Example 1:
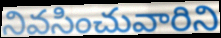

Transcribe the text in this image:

నివసించువారిని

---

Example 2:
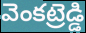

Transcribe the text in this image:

వెంకట్రెడ్డి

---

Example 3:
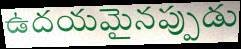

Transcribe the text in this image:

ఉదయమైనప్పుడు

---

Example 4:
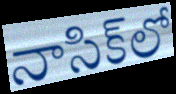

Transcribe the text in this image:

నాసిక్‌లో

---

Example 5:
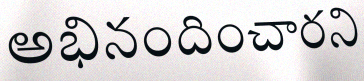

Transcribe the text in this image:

అభినందించారని